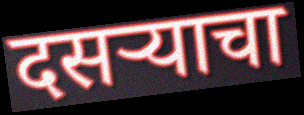
दसऱ्याचा